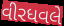
વીરધવલે